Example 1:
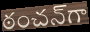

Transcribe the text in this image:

ఠంచన్‌గా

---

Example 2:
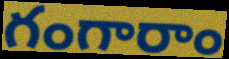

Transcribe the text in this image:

గంగారాం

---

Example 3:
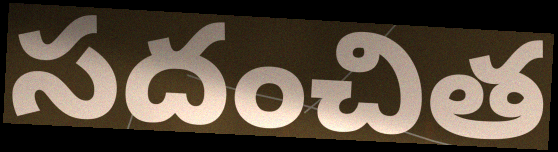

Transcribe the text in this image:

సదంచిత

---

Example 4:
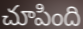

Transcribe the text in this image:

చూపింది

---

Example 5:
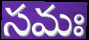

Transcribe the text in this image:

సమః